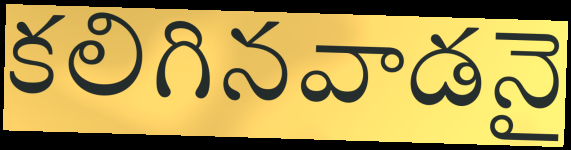
కలిగినవాడనై